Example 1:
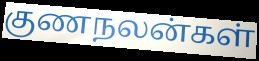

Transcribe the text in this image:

குணநலன்கள்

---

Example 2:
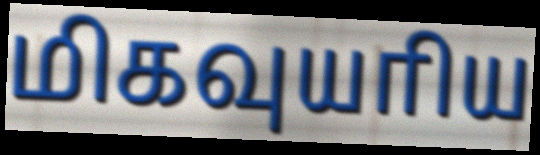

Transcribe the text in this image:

மிகவுயரிய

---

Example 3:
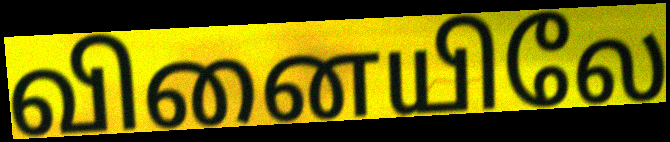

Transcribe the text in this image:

வினையிலே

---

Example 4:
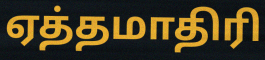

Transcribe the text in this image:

ஏத்தமாதிரி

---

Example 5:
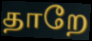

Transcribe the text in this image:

தாறே